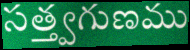
సత్త్వగుణము